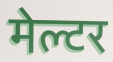
मेल्टर